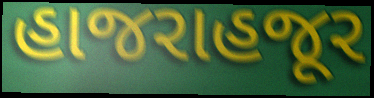
હાજરાહજૂર